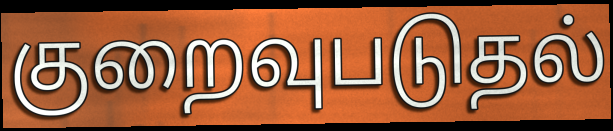
குறைவுபடுதல்